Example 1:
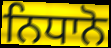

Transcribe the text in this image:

ਨਿਧਾਨੋ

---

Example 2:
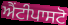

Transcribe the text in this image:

ਐਂਟੀਪਾਸਟੋ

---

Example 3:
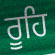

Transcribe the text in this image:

ਰੂਹਿ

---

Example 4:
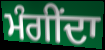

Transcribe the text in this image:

ਮੰਗੀਂਦਾ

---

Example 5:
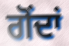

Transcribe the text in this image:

ਗੋਂਦਾਂ